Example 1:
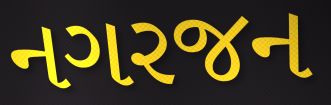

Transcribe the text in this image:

નગરજન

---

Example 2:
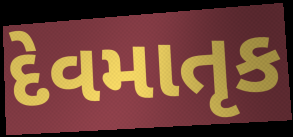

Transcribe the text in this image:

દેવમાતૃક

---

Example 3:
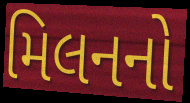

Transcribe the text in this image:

મિલનનો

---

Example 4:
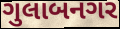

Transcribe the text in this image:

ગુલાબનગર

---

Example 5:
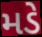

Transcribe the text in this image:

મડે